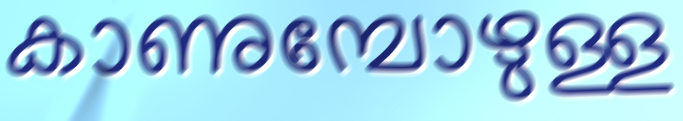
കാണുമ്പോഴുള്ള